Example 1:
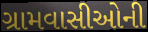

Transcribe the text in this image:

ગ્રામવાસીઓની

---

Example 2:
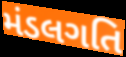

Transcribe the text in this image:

મંડલગતિ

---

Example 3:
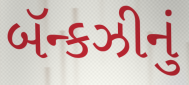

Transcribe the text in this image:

બૅન્કઝીનું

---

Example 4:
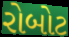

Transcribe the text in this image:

રોબોટ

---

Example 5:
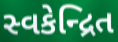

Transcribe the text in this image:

સ્વકેન્દ્રિત